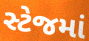
સ્ટેજમાં